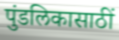
पुंडलिकासाठीं